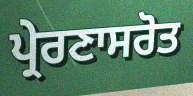
ਪ੍ਰੇਰਣਾਸਰੋਤ